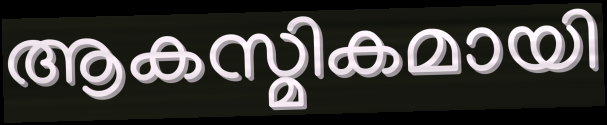
ആകസ്മികമായി